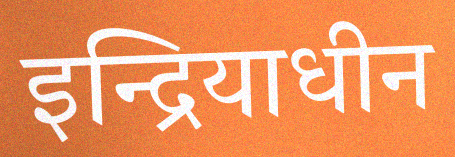
इन्द्रियाधीन